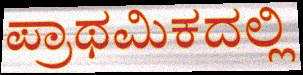
ಪ್ರಾಥಮಿಕದಲ್ಲಿ